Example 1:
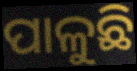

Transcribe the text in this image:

ପାଳୁଛି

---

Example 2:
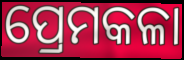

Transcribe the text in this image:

ପ୍ରେମକଳା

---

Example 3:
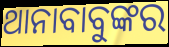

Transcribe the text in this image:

ଥାନାବାବୁଙ୍କର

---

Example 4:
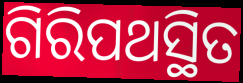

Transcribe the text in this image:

ଗିରିପଥସ୍ଥିତ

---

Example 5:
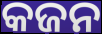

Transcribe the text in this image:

କଜନ